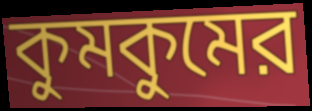
কুমকুমের